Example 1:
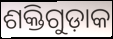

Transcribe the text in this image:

ଶକ୍ତିଗୁଡ଼ାକ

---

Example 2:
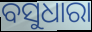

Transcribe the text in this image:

ବସୁଧାରା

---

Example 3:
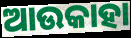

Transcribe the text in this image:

ଆଉକାହା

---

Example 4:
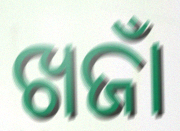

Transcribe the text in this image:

ଖଜାଁ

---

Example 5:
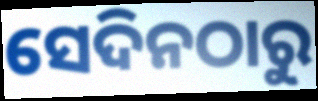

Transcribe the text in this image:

ସେଦିନଠାରୁ